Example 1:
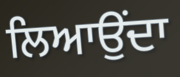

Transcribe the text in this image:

ਲਿਆਉਂਦਾ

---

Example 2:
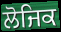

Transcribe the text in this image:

ਲੋਜਿਕ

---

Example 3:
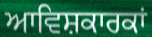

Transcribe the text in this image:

ਆਵਿਸ਼ਕਾਰਕਾਂ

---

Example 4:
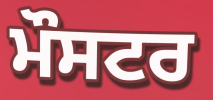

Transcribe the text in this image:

ਮੌਸਟਰ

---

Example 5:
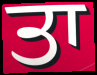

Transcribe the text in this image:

ਤਾ